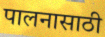
पालनासाठी